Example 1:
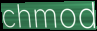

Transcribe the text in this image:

chmod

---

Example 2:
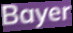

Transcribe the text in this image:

Bayer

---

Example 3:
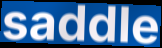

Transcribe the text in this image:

saddle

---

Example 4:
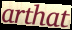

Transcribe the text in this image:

arthat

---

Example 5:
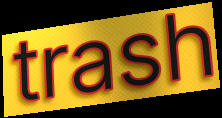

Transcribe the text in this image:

trash